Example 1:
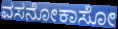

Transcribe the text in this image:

ವಸನೋಕಾಸೋ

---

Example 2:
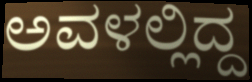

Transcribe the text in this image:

ಅವಳಲ್ಲಿದ್ದ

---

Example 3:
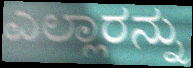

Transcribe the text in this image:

ಎಲ್ಲಾರನ್ನು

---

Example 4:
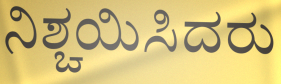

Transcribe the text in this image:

ನಿಶ್ಚಯಿಸಿದರು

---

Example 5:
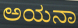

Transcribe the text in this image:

ಅಯನಾ